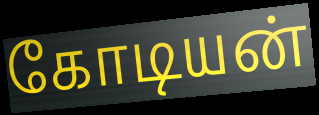
கோடியன்